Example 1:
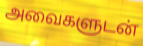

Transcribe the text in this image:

அவைகளுடன்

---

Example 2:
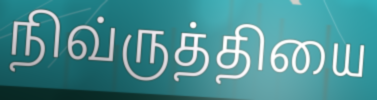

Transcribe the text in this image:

நிவ்ருத்தியை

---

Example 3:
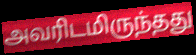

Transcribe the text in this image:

அவரிடமிருந்தது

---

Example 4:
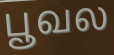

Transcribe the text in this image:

பூவல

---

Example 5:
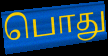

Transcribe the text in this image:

பொது